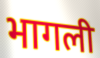
भागली